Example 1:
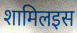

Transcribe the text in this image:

शामिलइस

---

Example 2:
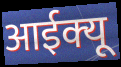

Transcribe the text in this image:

आईक्‍यू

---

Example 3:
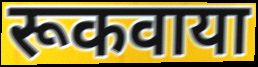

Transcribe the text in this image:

रूकवाया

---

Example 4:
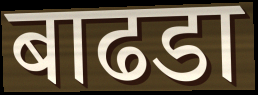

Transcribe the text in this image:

बाढडा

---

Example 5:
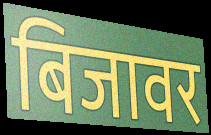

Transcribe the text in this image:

बिजावर